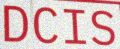
DCIS